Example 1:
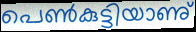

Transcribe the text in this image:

പെൺകുട്ടിയാണു്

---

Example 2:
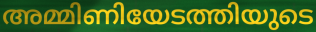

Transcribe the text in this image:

അമ്മിണിയേടത്തിയുടെ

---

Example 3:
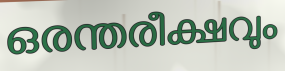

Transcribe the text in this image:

ഒരന്തരീക്ഷവും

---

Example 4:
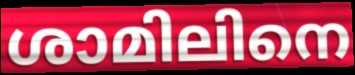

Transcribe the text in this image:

ശാമിലിനെ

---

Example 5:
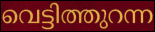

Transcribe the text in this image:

വെട്ടിത്തുറന്ന